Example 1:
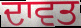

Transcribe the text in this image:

ਦਾਵਤ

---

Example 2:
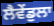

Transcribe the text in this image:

ਲੈਵੇਂਡੁਲਾ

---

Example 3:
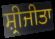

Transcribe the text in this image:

ਸ਼੍ਰੀਜੀਤਾ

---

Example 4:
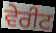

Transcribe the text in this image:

ਵੇਰੀਟ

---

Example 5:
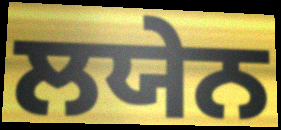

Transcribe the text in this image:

ਲਯੇਨ